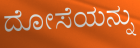
ದೋಸೆಯನ್ನು